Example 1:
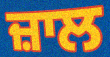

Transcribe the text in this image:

ਜ਼ਾਲ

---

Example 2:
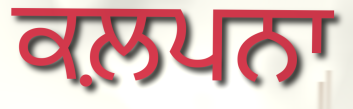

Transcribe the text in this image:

ਕਲ਼ਪਨਾ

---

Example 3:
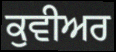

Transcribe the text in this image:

ਕੁਵੀਅਰ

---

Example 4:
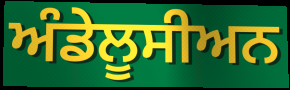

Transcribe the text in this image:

ਅੰਡੇਲੂਸੀਅਨ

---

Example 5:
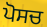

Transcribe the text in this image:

ਪੋਸਚ